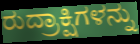
ರುದ್ರಾಕ್ಷಿಗಳನ್ನು